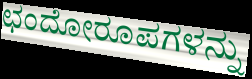
ಛಂದೋರೂಪಗಳನ್ನು